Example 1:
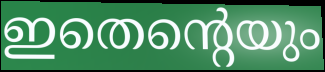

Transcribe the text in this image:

ഇതെന്റെയും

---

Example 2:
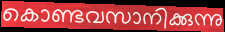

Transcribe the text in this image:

കൊണ്ടവസാനിക്കുന്നു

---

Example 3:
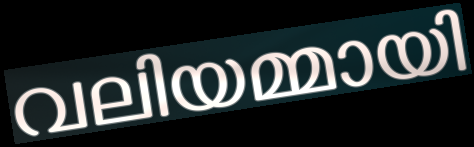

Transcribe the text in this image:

വലിയമ്മായി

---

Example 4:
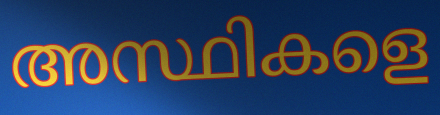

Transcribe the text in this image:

അസ്ഥികളെ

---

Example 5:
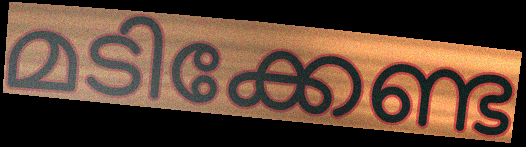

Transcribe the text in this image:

മടിക്കേണ്ട